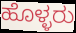
ಹೊಳ್ಳರು